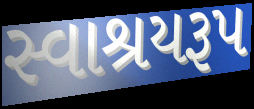
સ્વાશ્રયરૂપ